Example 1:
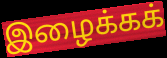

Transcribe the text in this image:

இழைக்கக்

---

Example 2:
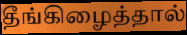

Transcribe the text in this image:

தீங்கிழைத்தால்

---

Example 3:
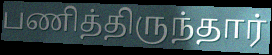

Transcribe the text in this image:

பணித்திருந்தார்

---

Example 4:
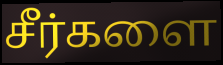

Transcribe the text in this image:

சீர்களை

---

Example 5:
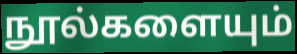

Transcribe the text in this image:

நூல்களையும்